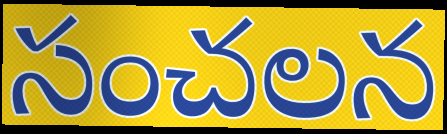
సంచలన